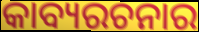
କାବ୍ୟରଚନାର